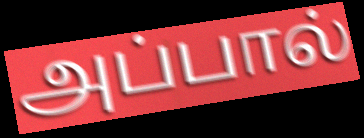
அப்பால்